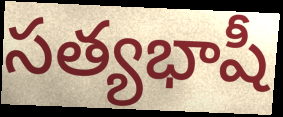
సత్యభాషీ